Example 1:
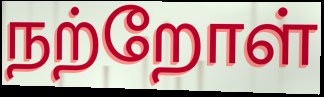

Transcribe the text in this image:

நற்றோள்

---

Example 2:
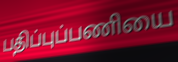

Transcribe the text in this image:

பதிப்புப்பணியை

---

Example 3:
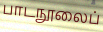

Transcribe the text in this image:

பாடநூலைப்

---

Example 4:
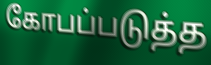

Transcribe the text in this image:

கோபப்படுத்த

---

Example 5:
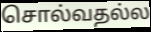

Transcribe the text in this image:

சொல்வதல்ல